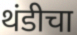
थंडीचा